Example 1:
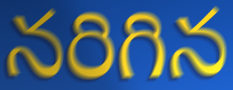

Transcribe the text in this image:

నరిగిన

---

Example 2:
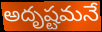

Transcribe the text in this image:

అదృష్టమనే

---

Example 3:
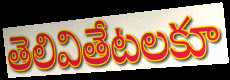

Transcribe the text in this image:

తెలివితేటలకూ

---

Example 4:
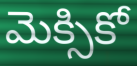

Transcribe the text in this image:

మెక్సికో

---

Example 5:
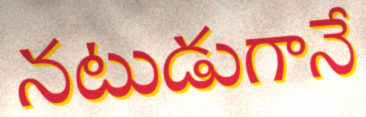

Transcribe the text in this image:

నటుడుగానే